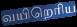
வயிறெரிய